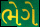
ભેગે